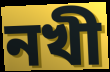
নখী